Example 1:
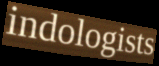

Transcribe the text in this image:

indologists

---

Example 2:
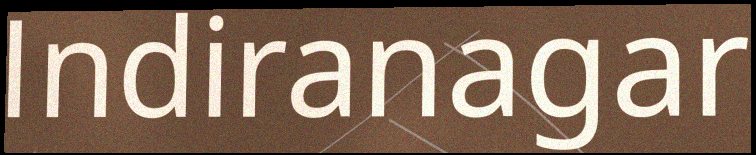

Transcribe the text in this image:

Indiranagar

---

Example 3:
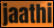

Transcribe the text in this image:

jaathi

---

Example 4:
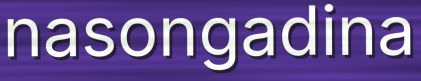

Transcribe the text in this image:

nasongadina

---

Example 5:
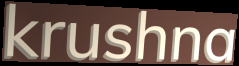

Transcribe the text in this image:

krushna